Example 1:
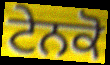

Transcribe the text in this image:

ਟੇਨਕੋ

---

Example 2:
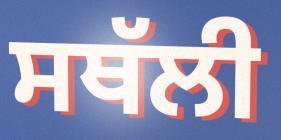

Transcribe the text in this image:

ਸਥੱਲੀ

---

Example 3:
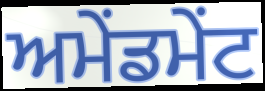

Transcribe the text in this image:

ਅਮੇਂਡਮੇਂਟ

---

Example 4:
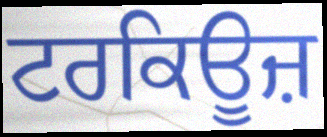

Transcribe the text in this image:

ਟਰਕਿਊਜ਼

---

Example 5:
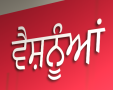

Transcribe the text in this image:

ਵੈਸ਼ਨੂੰਆਂ